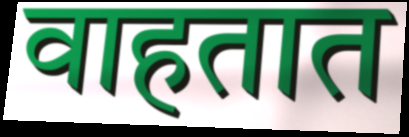
वाहतात